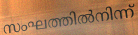
സംഘത്തിൽനിന്ന്